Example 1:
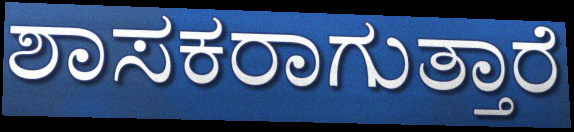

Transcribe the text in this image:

ಶಾಸಕರಾಗುತ್ತಾರೆ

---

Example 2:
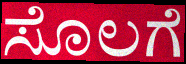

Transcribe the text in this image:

ಸೊಲಗೆ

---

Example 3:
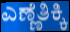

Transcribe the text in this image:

ಎಣ್ಣೆತಿಕ್ಕಿ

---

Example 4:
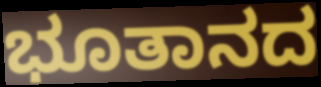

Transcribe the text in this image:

ಭೂತಾನದ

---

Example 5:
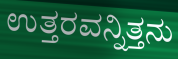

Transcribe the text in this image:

ಉತ್ತರವನ್ನಿತ್ತನು